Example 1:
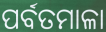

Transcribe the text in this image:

ପର୍ବତମାଳା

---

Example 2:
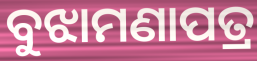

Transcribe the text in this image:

ବୁଝାମଣାପତ୍ର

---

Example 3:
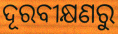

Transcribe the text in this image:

ଦୂରବୀକ୍ଷଣରୁ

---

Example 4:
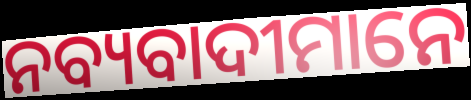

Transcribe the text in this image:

ନବ୍ୟବାଦୀମାନେ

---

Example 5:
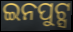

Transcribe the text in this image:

ଇନପୁଟ୍ସ